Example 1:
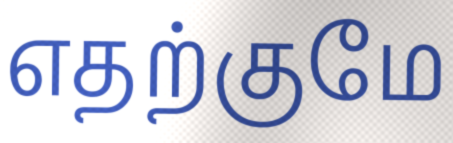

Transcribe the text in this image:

எதற்குமே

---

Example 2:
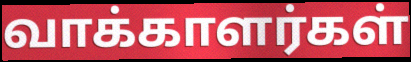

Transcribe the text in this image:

வாக்காளர்கள்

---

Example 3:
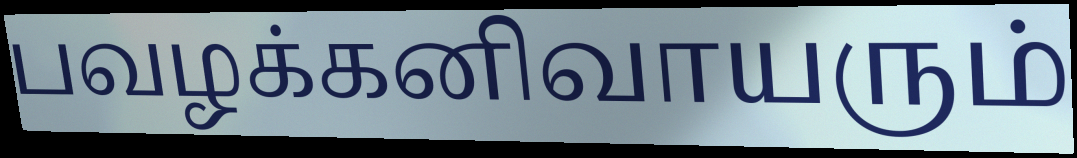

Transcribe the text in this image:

பவழக்கனிவாயரும்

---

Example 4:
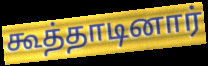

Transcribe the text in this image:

கூத்தாடினார்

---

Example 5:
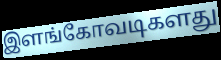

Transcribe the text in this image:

இளங்கோவடிகளது